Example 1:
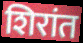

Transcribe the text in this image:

शिरांत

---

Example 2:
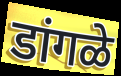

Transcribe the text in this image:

डांगळे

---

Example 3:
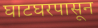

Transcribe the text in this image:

घाटघरपासून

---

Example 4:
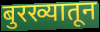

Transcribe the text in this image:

बुरख्यातून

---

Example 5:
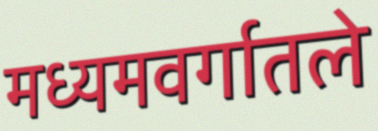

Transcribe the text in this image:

मध्यमवर्गातले